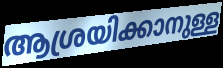
ആശ്രയിക്കാനുള്ള